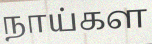
நாய்கள